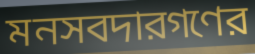
মনসবদারগণের